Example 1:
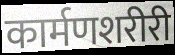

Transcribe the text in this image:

कार्मणशरीरी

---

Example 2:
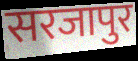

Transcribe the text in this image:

सरजापुर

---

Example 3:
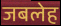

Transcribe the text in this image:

जबलेह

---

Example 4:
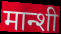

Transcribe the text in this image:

मान्शी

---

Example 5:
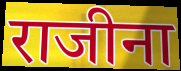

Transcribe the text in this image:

राजीना